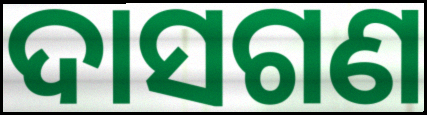
ଦାସଗଣ